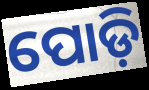
ପୋଡ଼ି